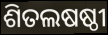
ଶିତଲଷଷ୍ଠୀ